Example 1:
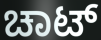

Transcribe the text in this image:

ಚಾಟ್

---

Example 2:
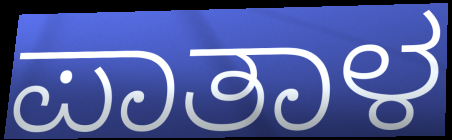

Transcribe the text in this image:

ಪಾತಾಳ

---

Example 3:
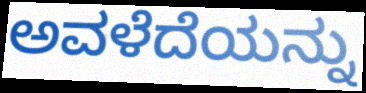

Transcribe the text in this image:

ಅವಳೆದೆಯನ್ನು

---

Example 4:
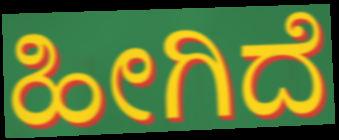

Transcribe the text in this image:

ಹೀಗಿದೆ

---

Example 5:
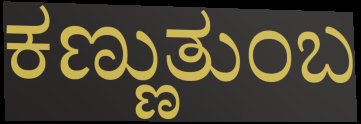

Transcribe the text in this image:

ಕಣ್ಣುತುಂಬ